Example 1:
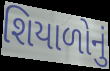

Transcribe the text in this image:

શિયાળોનું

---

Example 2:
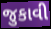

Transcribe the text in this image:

જુકાવી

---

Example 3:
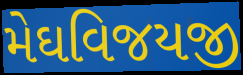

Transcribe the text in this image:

મેઘવિજયજી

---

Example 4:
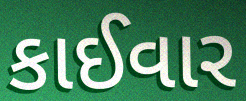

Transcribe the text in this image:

કાઈવાર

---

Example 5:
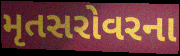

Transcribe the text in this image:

મૃતસરોવરના